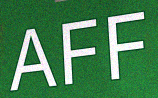
AFF